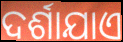
ଦର୍ଶାଯାଏ